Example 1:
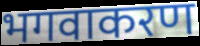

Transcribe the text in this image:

भगवाकरण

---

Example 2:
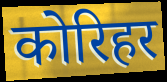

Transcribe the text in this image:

कोरिहर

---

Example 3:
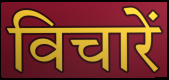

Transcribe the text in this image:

विचारें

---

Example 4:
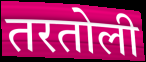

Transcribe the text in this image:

तरतोली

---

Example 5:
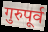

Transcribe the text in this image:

गुरुपूर्व